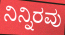
ನಿನ್ನಿರವು